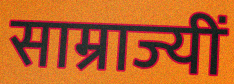
साम्राज्यीं